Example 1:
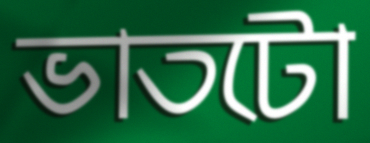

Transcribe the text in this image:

ভাতটো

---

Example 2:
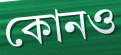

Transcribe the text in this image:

কোনও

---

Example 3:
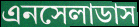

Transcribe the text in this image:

এনসেলাডাস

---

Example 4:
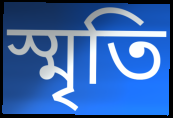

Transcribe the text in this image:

স্মৃতি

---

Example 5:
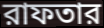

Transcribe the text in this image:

রাফতার